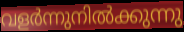
വളർന്നുനിൽക്കുന്നു